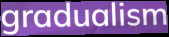
gradualism